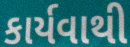
કાર્યવાથી